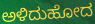
ಅಳಿದುಹೋದ